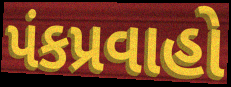
પંકપ્રવાહો